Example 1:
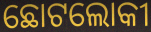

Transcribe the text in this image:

ଛୋଟଲୋକୀ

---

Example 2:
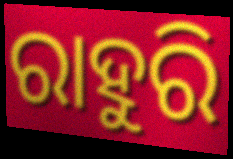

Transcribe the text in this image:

ରାହୁରି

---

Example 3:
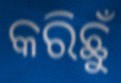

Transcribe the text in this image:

କରିଛୁଁ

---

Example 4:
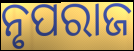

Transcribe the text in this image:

ନୃପରାଜ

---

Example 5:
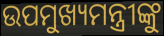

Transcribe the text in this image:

ଉପମୁଖ୍ୟମନ୍ତ୍ରୀଙ୍କୁ